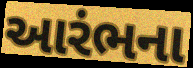
આરંભના